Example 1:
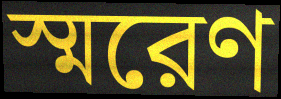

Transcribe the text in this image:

স্মরেণ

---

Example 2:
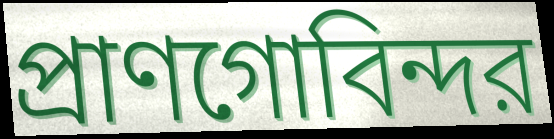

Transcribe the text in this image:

প্রাণগোবিন্দর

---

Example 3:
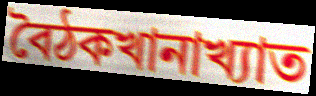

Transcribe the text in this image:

বৈঠকখানাখ্যাত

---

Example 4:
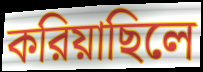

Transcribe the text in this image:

করিয়াছিলে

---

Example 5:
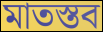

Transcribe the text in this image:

মাতস্তব